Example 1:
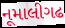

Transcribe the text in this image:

નૂમાલીગઢ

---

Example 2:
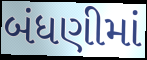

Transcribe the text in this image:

બંધણીમાં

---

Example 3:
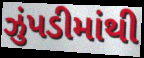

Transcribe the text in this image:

ઝુંપડીમાંથી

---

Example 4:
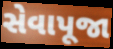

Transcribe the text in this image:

સેવાપૂજા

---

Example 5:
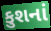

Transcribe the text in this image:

કુશનાં